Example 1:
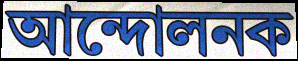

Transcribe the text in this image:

আন্দোলনক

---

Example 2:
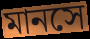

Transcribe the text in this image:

মানসে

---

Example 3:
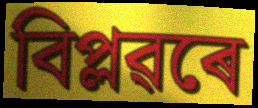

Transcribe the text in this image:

বিপ্লৱৰে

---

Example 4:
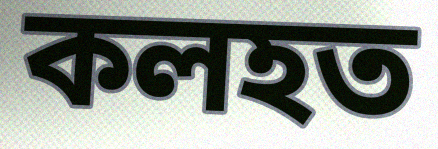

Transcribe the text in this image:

কলহত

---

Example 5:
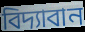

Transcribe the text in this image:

বিদ্যাবান